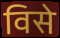
विसे